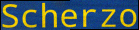
Scherzo